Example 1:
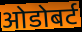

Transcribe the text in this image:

ओडोबर्ट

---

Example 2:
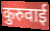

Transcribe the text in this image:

कुरुवाई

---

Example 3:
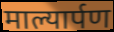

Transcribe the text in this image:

माल्यार्पण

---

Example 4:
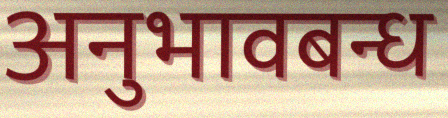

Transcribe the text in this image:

अनुभावबन्ध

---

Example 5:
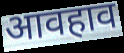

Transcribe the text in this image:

आवहाव